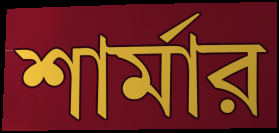
শার্মার